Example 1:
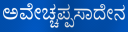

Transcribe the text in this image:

ಅವೇಚ್ಚಪ್ಪಸಾದೇನ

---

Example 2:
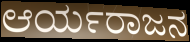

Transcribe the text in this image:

ಆರ್ಯರಾಜನ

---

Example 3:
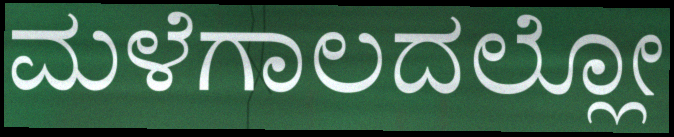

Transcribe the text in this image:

ಮಳೆಗಾಲದಲ್ಲೋ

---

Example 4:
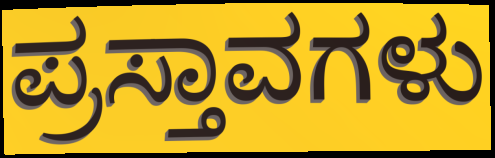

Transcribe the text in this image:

ಪ್ರಸ್ತಾವಗಳು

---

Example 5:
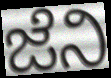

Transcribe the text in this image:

ಜೆನಿ